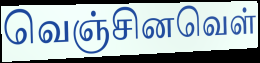
வெஞ்சினவெள்